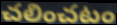
చలించటం